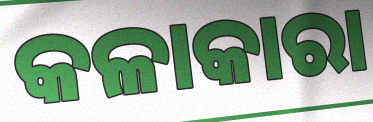
କଳାକାରା